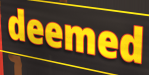
deemed